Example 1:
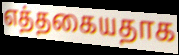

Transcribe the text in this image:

எத்தகையதாக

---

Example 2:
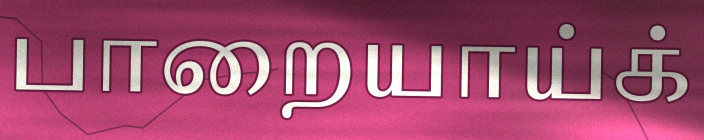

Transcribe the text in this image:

பாறையாய்க்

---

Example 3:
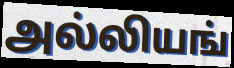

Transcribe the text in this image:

அல்லியங்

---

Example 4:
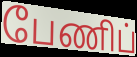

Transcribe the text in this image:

பேணிப்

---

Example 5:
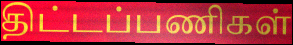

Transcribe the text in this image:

திட்டப்பணிகள்